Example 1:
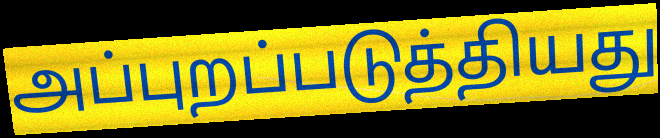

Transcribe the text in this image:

அப்புறப்படுத்தியது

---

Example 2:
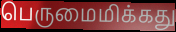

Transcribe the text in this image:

பெருமைமிக்கது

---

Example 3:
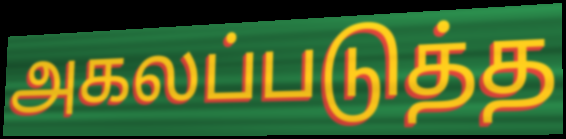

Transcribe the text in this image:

அகலப்படுத்த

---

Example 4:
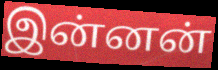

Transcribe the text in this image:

இன்னன்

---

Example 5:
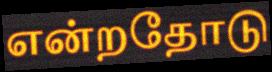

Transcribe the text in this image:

என்றதோடு